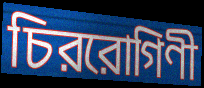
চিররোগিণী